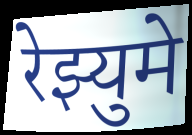
रेझ्युमे